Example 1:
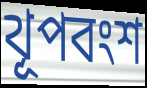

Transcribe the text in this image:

থূপবংশ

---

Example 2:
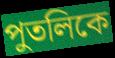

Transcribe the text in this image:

পুতলিকে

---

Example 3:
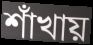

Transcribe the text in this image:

শাঁখায়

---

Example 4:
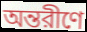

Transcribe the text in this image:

অন্তরীণে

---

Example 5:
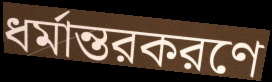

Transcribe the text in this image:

ধর্মান্তরকরণে